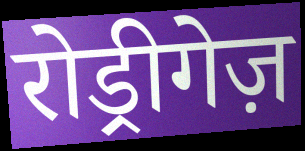
रोड्रीगेज़